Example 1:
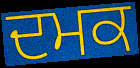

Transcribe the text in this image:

ਦਮਕ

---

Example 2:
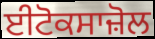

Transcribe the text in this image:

ਈਟੋਕਸਾਜ਼ੋਲ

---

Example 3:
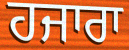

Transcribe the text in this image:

ਹਜਾਰਾ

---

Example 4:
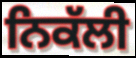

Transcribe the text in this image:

ਨਿਕੱਲੀ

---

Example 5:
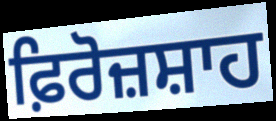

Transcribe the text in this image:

ਫ਼ਿਰੋਜ਼ਸ਼ਾਹ